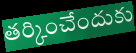
తర్కించేందుకు